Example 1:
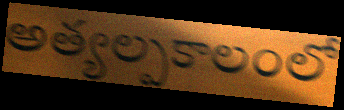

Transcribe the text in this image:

అత్యల్పకాలంలో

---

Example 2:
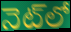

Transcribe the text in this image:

నెట్‌లో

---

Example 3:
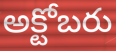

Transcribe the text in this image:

అక్టోబరు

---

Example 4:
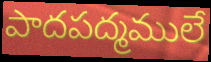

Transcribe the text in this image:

పాదపద్మములే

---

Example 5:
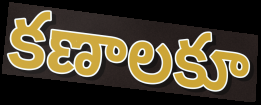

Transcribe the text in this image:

కణాలకూ